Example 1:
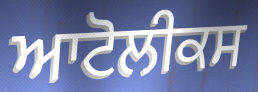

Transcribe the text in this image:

ਆਟੋਲੀਕਸ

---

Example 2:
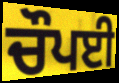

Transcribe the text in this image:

ਚੌਪਈ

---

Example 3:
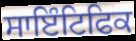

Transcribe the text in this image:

ਸਾਇੰਟਿਫਿਕ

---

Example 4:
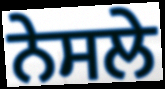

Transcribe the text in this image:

ਨੇਸਲੇ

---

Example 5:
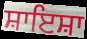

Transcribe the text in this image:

ਸ਼ਾਇਸ਼ਾ